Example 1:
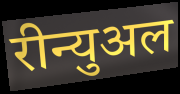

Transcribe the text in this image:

रीन्युअल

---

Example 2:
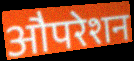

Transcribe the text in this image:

औपरेशन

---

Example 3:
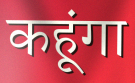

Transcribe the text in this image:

कहूंगा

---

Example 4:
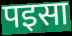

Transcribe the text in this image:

पइसा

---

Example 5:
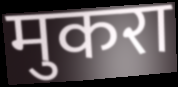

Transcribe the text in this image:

मुकरा